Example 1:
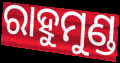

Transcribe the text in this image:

ରାହୁମୁଣ୍ଡ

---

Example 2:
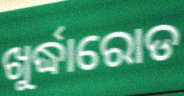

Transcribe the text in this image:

ଖୁର୍ଦ୍ଧାରୋଡ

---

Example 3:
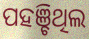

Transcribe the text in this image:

ପହଞ୍ଚିଥିଲ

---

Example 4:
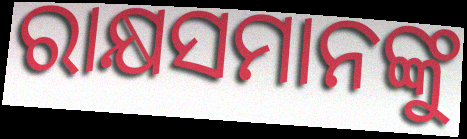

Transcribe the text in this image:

ରାକ୍ଷସମାନଙ୍କୁ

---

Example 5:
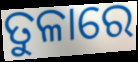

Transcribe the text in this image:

ତୁଳାରେ